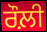
ਰੌਲ਼ੀ